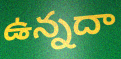
ఉన్నదా